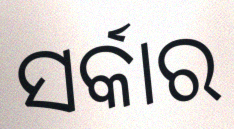
ସର୍କାର